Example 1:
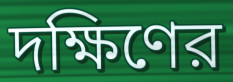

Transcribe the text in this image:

দক্ষিণের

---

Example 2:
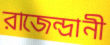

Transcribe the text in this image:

রাজেন্দ্রানী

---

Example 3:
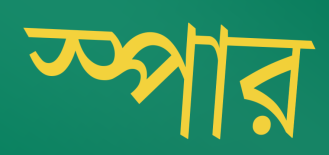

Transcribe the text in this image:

স্পার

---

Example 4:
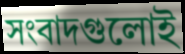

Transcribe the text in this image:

সংবাদগুলোই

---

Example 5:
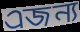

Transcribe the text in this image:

এজন্য